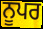
ਨੂਪਰ